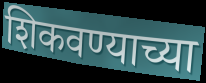
शिकवण्याच्या